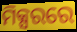
ମିକ୍ସରରେ